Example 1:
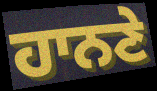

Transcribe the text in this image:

ਹਾਨਣੇ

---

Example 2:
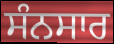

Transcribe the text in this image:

ਸੰਨਸਾਰ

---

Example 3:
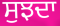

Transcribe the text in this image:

ਸੁਝਦਾ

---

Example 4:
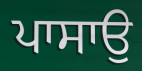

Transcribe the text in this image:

ਪਾਸਾਉ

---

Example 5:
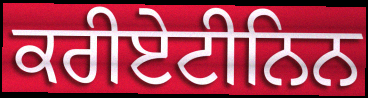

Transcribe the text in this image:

ਕਰੀਏਟੀਨਿਨ